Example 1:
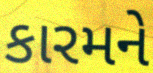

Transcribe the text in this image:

કારમને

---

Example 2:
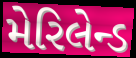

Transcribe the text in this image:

મેરિલેન્ડ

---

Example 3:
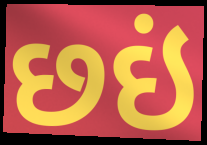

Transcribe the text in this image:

છઇં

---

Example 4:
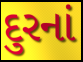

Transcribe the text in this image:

દુરનાં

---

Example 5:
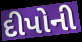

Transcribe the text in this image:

દીપોની